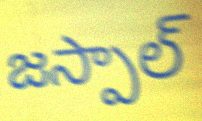
జస్పాల్